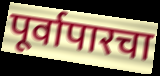
पूर्वापारचा